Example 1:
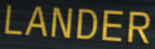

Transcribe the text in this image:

LANDER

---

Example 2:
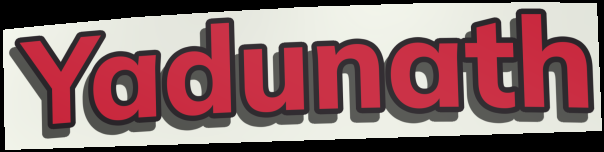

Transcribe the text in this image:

Yadunath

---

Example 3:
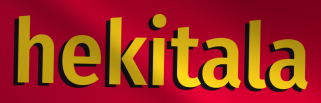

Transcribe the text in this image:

hekitala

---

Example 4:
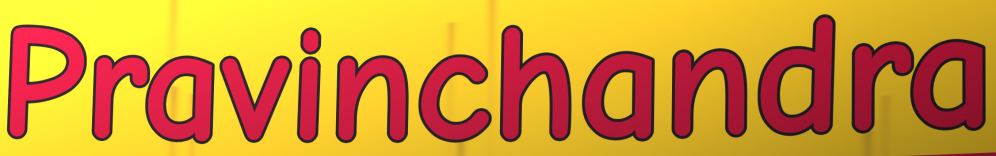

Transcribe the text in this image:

Pravinchandra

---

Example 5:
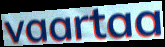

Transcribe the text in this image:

vaartaa